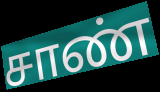
சாண்